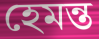
হেমন্ত